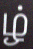
ழ்